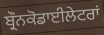
ਬ੍ਰੌਨਕੋਡਾਈਲੇਟਰਾਂ